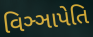
વિઞ્ઞાપેતિ